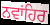
ਨਵਾਂਹਿਰ